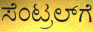
ಸೆಂಟ್ರಲ್‌ಗೆ